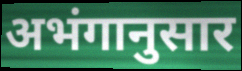
अभंगानुसार